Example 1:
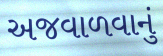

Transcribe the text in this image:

અજવાળવાનું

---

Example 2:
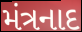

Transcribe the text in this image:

મંત્રનાદ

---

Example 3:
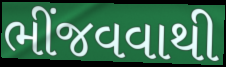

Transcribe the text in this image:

ભીંજવવાથી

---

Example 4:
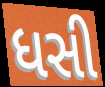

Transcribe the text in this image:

ધસી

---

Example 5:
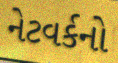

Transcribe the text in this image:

નેટવર્કનો